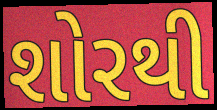
શોરથી